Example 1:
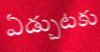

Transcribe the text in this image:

ఏడ్చుటకు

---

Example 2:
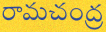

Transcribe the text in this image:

రామచంద్ర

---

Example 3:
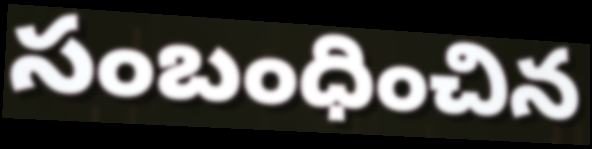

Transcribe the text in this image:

సంబంధించిన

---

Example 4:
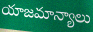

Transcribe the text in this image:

యాజమాన్యాలు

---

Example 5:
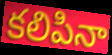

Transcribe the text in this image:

కలిపినా